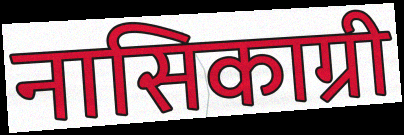
नासिकाग्री